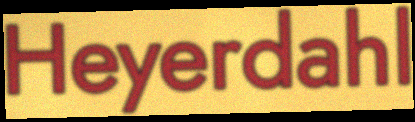
Heyerdahl